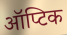
ऑप्टिक